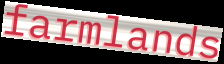
farmlands